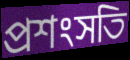
প্রশংসতি